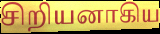
சிறியனாகிய